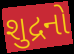
શુદ્રનો